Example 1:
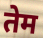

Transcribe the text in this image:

तेम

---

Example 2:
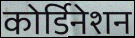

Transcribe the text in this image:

कोर्डिनेशन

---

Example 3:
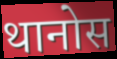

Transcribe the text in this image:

थानोस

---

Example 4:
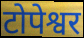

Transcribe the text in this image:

टोपेश्वर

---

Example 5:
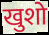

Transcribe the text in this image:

खुशो